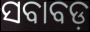
ସବାବଡ଼